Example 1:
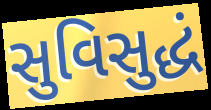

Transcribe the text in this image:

સુવિસુદ્ધં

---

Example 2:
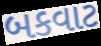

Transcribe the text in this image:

બકવાટ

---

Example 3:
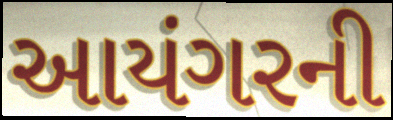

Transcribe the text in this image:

આયંગરની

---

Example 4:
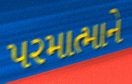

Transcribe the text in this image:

પરમાત્માને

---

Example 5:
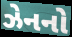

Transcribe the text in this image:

ઝેનનો